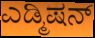
ಎಡ್ಮಿಷನ್